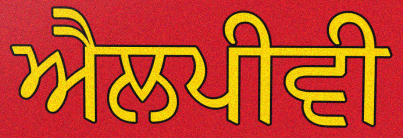
ਐਲਪੀਵੀ